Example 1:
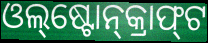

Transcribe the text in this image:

ଓଲ୍‌ଷ୍ଟୋନ୍‌କ୍ରାଫ୍‌ଟ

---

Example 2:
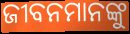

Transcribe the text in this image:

ଜୀବନମାନଙ୍କୁ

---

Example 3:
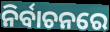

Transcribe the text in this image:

ନିର୍ବାଚନରେ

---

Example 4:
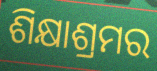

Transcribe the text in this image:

ଶିକ୍ଷାଶ୍ରମର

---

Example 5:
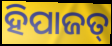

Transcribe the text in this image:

ହିପାଜତ୍